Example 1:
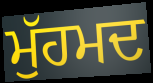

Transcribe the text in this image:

ਮੁੱਹਮਦ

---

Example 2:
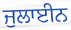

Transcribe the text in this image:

ਜੁਲਾਈਨ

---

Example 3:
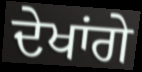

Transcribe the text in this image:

ਦੇਖਾਂਗੇ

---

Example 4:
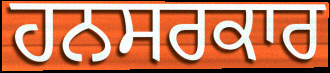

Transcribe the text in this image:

ਹਨਸਰਕਾਰ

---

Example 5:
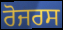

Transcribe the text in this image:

ਰੋਜਰਸ